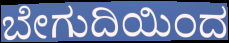
ಬೇಗುದಿಯಿಂದ